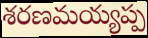
శరణమయ్యప్ప